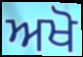
ਅਖੋ